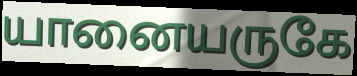
யானையருகே